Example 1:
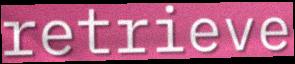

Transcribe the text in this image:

retrieve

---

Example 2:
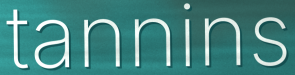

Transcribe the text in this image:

tannins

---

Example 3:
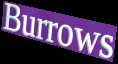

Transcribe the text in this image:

Burrows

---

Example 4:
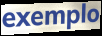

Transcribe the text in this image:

exemplo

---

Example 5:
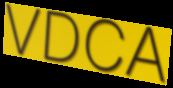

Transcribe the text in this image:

VDCA